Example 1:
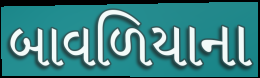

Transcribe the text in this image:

બાવળિયાના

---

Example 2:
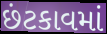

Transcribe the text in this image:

છંટકાવમાં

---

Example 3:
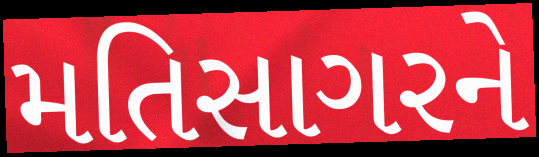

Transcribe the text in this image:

મતિસાગરને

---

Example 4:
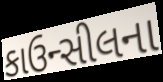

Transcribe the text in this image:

કાઉન્સીલના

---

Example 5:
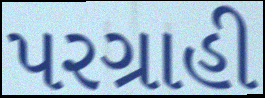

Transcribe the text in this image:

પરગ્રાહી